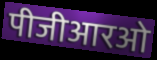
पीजीआरओ